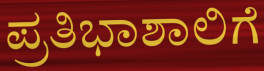
ಪ್ರತಿಭಾಶಾಲಿಗೆ